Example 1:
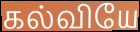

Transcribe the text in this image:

கல்வியே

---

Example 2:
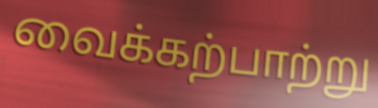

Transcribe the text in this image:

வைக்கற்பாற்று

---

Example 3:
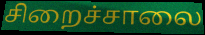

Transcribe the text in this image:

சிறைச்சாலை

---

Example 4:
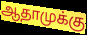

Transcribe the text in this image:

ஆதாமுக்கு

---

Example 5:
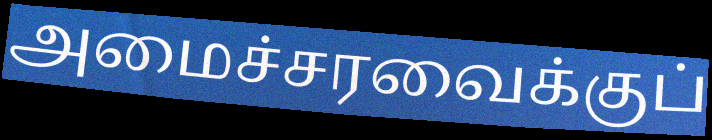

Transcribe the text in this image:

அமைச்சரவைக்குப்